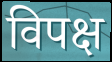
विपक्ष